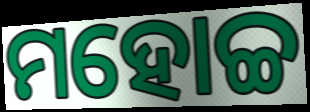
ମହୋଚ୍ଚ